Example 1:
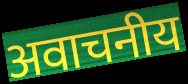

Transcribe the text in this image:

अवाचनीय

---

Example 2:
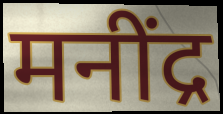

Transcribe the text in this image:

मनींद्र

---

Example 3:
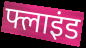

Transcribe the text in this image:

फ्लाइंड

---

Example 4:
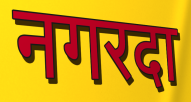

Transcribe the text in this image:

नगरदा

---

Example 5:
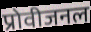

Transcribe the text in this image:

प्रोवीजनल